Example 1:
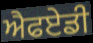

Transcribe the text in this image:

ਐਫਏਡੀ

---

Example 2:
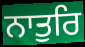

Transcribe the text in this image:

ਨਾਤੁਰਿ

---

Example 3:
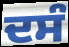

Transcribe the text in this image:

ਦਸੰ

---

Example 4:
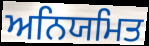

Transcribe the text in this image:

ਅਨਿਯਮਿਤ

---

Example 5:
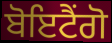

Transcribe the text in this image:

ਬੋਇਟੈਂਗੋ